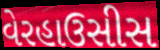
વેરહાઉસીસ